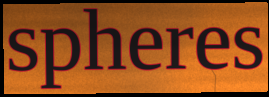
spheres